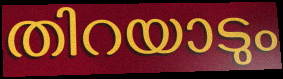
തിറയാടും